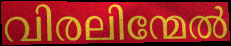
വിരലിന്മേൽ